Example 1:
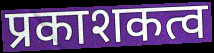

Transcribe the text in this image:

प्रकाशकत्व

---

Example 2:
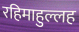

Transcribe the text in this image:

रहिमाहुल्लह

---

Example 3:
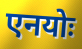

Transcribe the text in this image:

एनयोः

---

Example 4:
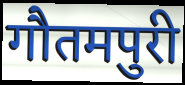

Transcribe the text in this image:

गौतमपुरी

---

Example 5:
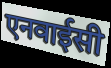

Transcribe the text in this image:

एनवाईसी